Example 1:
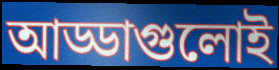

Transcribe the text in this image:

আড্ডাগুলোই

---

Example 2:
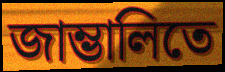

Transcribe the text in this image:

জাম্ভালিতে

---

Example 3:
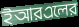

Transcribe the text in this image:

ইআরএলের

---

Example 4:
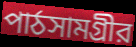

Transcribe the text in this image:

পাঠসামগ্রীর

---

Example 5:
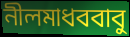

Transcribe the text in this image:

নীলমাধববাবু